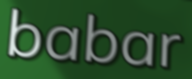
babar